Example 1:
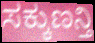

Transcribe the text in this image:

ಸಕ್ಕುಣನ್ತಿ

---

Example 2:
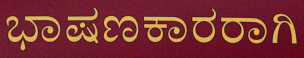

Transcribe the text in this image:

ಭಾಷಣಕಾರರಾಗಿ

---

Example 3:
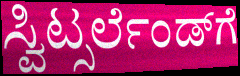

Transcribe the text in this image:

ಸ್ವಿಟ್ಸರ್ಲೆಂಡ್‌ಗೆ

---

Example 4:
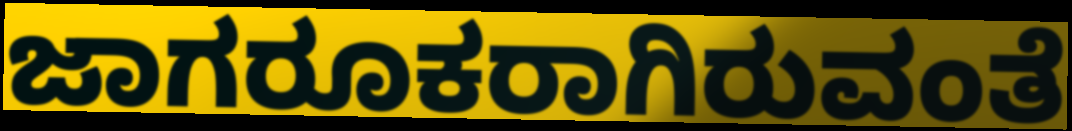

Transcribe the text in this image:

ಜಾಗರೂಕರಾಗಿರುವಂತೆ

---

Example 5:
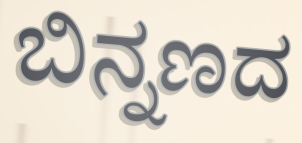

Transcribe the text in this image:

ಬಿನ್ನಣದ